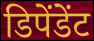
डिपेंडेंट